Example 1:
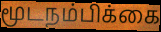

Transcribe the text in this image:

மூடநம்பிக்கை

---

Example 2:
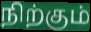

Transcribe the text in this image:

நிற்கும்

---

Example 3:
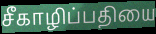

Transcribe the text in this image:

சீகாழிப்பதியை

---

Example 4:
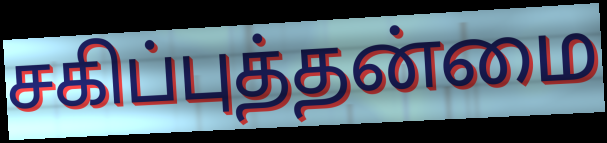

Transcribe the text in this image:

சகிப்புத்தன்மை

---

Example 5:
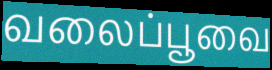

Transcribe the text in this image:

வலைப்பூவை